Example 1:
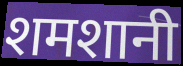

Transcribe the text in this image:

शमशानी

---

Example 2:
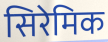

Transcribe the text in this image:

सिरेमिक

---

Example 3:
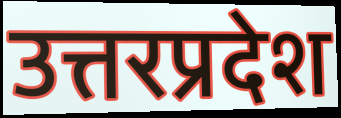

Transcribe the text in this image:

उत्तरप्रदेश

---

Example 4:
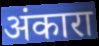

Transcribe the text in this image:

अंकारा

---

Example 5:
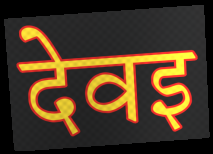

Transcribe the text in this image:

देवइ